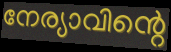
നേര്യാവിന്റെ